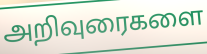
அறிவுரைகளை